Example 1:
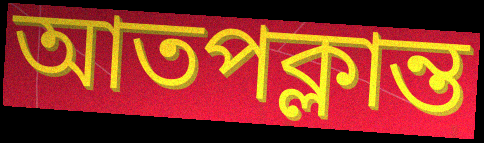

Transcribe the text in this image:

আতপক্লান্ত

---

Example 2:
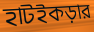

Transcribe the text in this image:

হাটইকড়ার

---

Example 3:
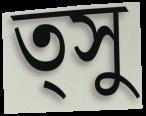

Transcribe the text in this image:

ত্সু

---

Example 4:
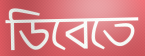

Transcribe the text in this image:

ডিবেতে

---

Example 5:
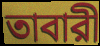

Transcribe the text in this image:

তাবারী